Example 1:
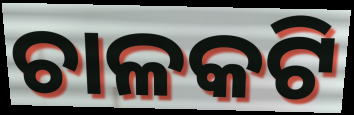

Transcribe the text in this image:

ଚାଳକଟି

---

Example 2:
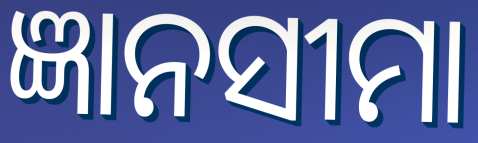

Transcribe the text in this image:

ଜ୍ଞାନସୀମା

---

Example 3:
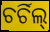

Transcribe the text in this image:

ଚର୍ଚିଲ୍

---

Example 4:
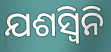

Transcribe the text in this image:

ଯଶସ୍ୱିନି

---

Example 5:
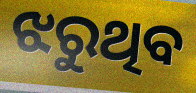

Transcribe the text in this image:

ଝରୁଥିବ